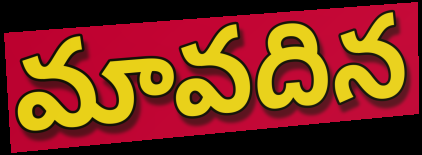
మావదిన